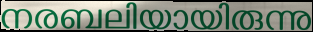
നരബലിയായിരുന്നു